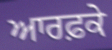
ਆਰਫ਼ਕੇ